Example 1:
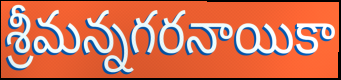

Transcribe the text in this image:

శ్రీమన్నగరనాయికా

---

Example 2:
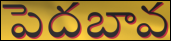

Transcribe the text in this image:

పెదబావ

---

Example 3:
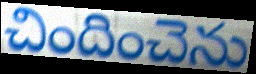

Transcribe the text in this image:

చిందించెను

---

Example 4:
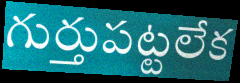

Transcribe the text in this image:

గుర్తుపట్టలేక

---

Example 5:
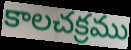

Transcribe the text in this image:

కాలచక్రము